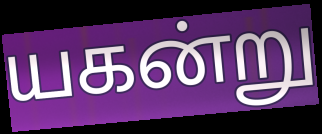
யகன்று